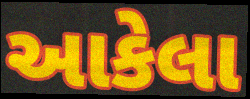
આકેલા